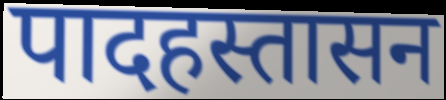
पादहस्तासन